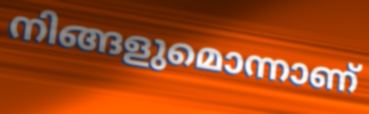
നിങ്ങളുമൊന്നാണ്